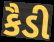
કૈડી